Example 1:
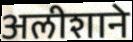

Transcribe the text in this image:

अलीशाने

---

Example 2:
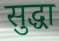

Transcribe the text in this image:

सुद्धा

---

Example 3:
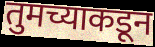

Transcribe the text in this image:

तुमच्याकडून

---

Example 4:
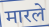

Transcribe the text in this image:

मारले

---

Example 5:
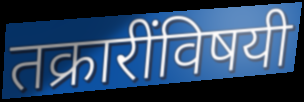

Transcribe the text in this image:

तक्रारींविषयी